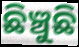
ଛିଞ୍ଚୁଛି